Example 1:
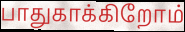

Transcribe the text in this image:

பாதுகாக்கிறோம்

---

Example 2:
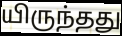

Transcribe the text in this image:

யிருந்தது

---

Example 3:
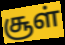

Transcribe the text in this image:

சூள்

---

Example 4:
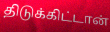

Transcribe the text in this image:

திடுக்கிட்டான்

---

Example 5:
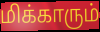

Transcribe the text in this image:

மிக்காரும்